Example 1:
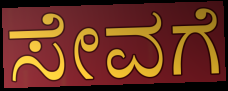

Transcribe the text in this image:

ಸೇವಗೆ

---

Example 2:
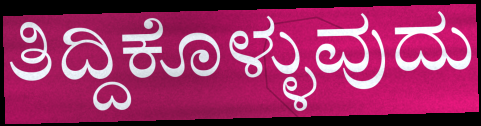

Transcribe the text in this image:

ತಿದ್ದಿಕೊಳ್ಳುವುದು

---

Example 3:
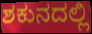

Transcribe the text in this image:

ಶಕುನದಲ್ಲಿ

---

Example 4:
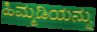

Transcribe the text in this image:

ಹಿಮ್ಮಡಿಯನ್ನು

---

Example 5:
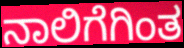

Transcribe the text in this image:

ನಾಲಿಗೆಗಿಂತ